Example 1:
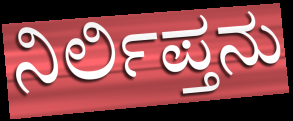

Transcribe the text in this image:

ನಿರ್ಲಿಪ್ತನು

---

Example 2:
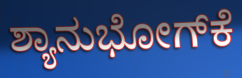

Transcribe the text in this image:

ಶ್ಯಾನುಭೋಗ್‌ಕೆ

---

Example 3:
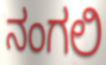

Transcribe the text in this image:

ನಂಗಲಿ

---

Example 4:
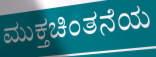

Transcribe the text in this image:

ಮುಕ್ತಚಿಂತನೆಯ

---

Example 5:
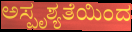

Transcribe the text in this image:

ಅಸ್ಪೃಶ್ಯತೆಯಿಂದ